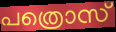
പത്രൊസ്